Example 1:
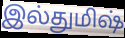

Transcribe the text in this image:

இல்துமிஷ்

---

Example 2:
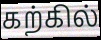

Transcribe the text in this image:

கற்கில்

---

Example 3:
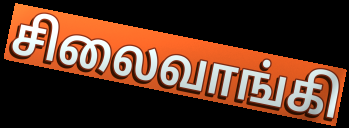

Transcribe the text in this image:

சிலைவாங்கி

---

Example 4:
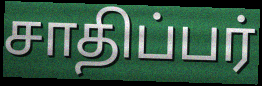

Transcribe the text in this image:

சாதிப்பர்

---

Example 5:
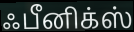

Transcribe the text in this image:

ஃபீனிக்ஸ்